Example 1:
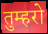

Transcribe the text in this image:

तुम्हरो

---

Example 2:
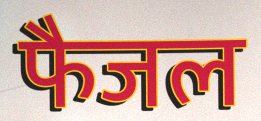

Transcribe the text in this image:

फैजल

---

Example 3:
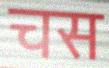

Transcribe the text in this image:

चस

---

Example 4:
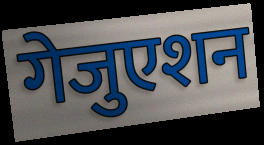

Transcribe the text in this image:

गेजुएशन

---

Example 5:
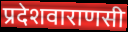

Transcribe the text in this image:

प्रदेशवाराणसी